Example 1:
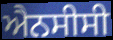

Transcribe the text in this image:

ਐਨਸੀਸੀ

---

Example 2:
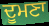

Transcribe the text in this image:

ਦੂਮਣਾ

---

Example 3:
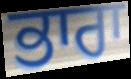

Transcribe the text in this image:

ਭਾਰਾ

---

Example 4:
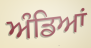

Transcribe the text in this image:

ਅੰਡਿਆਂ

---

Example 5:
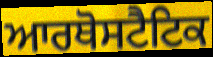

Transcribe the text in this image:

ਆਰਥੋਸਟੈਟਿਕ